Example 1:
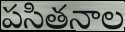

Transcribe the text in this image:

పసితనాల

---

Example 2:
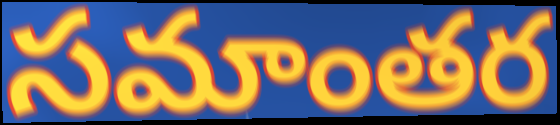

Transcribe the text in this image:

సమాంతర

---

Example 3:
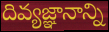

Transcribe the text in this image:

దివ్యజ్ఞానాన్ని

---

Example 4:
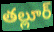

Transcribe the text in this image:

తల్లూర్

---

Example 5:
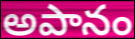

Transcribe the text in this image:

అపానం